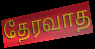
தேரவாத